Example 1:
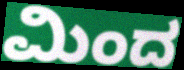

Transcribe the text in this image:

ಮಿಂದ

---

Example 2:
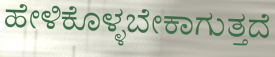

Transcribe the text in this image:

ಹೇಳಿಕೊಳ್ಳಬೇಕಾಗುತ್ತದೆ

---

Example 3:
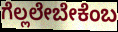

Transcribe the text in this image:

ಗೆಲ್ಲಲೇಬೇಕೆಂಬ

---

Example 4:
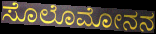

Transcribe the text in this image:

ಸೊಲೊಮೋನನ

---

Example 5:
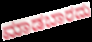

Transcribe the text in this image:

ಮಾಡಬಾರದು